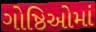
ગોષ્ઠિઓમાં